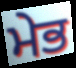
ਮੇਭ